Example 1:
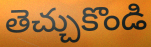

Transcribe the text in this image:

తెచ్చుకొండి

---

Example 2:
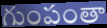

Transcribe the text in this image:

గుంపంతా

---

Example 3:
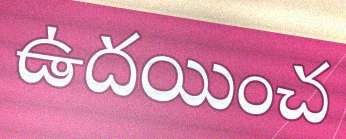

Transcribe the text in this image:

ఉదయించ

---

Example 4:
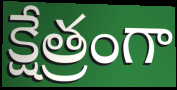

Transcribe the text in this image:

క్షేత్రంగా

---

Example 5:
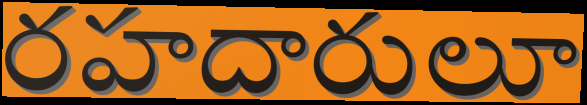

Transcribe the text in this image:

రహదారులూ